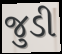
જુડી